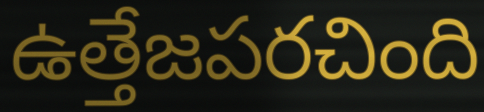
ఉత్తేజపరచింది